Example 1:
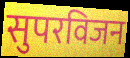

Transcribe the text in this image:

सुपरविजन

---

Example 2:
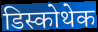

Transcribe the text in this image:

डिस्कोथेक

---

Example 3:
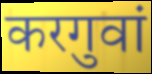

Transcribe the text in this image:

करगुवां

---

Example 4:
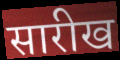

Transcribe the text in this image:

सारीख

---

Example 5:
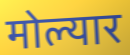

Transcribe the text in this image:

मोल्यार